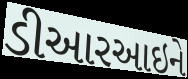
ડીઆરઆઇને